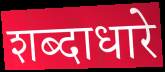
शब्दाधारे